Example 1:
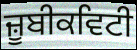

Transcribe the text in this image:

ਜ਼ੂਬੀਕਵਿਟੀ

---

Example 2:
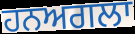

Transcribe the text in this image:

ਹਨਅਗਲਾ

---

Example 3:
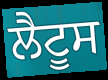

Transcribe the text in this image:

ਲੈਟੂਸ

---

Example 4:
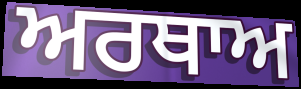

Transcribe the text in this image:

ਅਰਥਾਅ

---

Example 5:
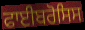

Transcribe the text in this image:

ਫਾਈਬਰੋਸਿਸ